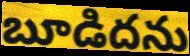
బూడిదను